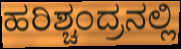
ಹರಿಶ್ಚಂದ್ರನಲ್ಲಿ